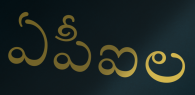
ఏపీఐల